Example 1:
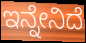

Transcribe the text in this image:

ಇನ್ನೇನಿದೆ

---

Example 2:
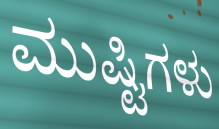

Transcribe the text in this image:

ಮುಷ್ಟಿಗಳು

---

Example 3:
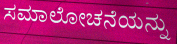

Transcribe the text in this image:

ಸಮಾಲೋಚನೆಯನ್ನು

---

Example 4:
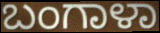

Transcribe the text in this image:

ಬಂಗಾಳಾ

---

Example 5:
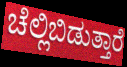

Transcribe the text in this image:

ಚೆಲ್ಲಿಬಿಡುತ್ತಾರೆ